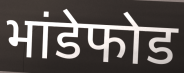
भांडेफोड